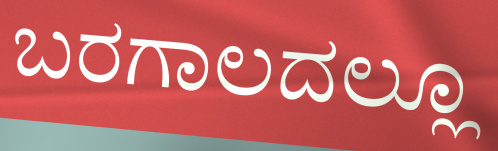
ಬರಗಾಲದಲ್ಲೂ